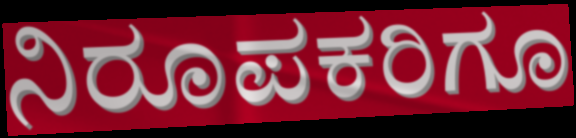
ನಿರೂಪಕರಿಗೂ